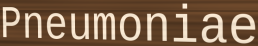
Pneumoniae